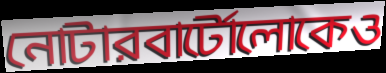
নোটারবার্টোলোকেও